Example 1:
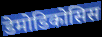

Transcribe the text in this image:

डेमोडिकोसिस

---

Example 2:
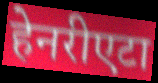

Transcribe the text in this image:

हेनरीएटा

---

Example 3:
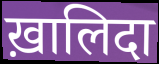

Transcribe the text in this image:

ख़ालिदा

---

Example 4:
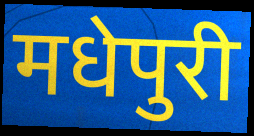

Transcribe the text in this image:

मधेपुरी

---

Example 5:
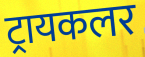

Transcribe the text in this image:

ट्रायकलर